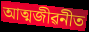
আত্মজীৱনীত